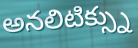
అనలిటిక్స్ను